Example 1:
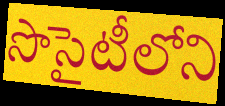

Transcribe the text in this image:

సొసైటీలోని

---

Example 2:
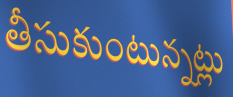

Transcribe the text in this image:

తీసుకుంటున్నట్లు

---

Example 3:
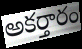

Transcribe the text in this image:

అకర్తారం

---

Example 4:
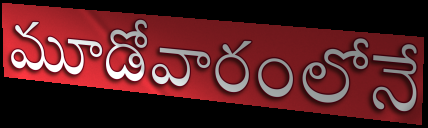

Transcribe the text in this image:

మూడోవారంలోనే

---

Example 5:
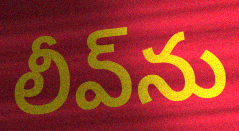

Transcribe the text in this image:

లీవ్‌ను